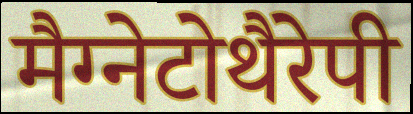
मैग्नेटोथैरेपी